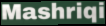
Mashriqi